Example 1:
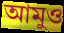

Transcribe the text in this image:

আমুও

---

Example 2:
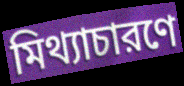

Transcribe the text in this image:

মিথ্যাচারণে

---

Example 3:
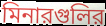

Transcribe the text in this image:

মিনারগুলির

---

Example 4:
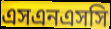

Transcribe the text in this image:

এসএনএসসি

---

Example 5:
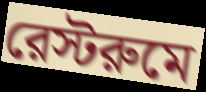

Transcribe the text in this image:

রেস্টরুমে